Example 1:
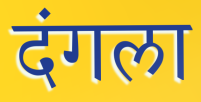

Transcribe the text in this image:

दंगला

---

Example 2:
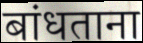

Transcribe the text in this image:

बांधताना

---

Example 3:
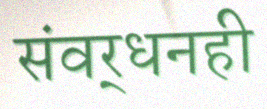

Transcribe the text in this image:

संवर्धनही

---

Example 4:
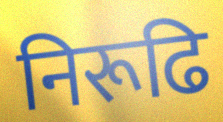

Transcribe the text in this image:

निरूढि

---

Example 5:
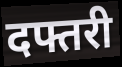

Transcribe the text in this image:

दफ्तरी